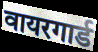
वायरगार्ड